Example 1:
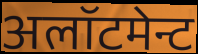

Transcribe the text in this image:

अलॉटमेन्ट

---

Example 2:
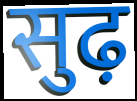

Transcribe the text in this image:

सुढ़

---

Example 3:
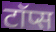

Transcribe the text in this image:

टॉप्स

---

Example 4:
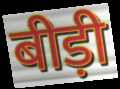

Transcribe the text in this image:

बीड़ी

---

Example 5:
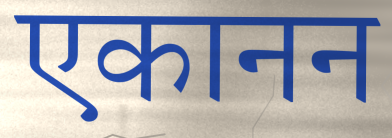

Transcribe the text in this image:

एकानन